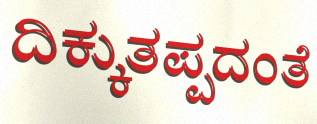
ದಿಕ್ಕುತಪ್ಪದಂತೆ